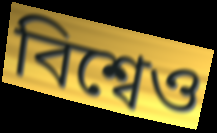
বিশ্বেও